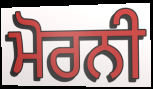
ਮੋਰਨੀ